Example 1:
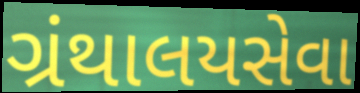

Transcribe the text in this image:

ગ્રંથાલયસેવા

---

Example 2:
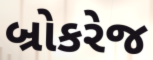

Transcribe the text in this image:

બ્રોકરેજ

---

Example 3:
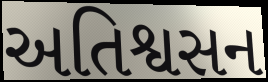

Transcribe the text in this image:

અતિશ્વસન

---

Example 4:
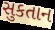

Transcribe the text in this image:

સુકતાન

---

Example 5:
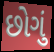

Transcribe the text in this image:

છોગું